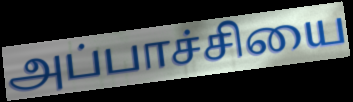
அப்பாச்சியை